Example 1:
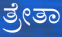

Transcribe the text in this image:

ತ್ರೇತಾ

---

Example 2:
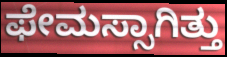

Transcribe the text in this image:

ಫೇಮಸ್ಸಾಗಿತ್ತು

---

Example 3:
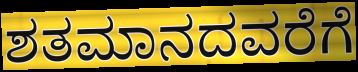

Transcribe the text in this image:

ಶತಮಾನದವರೆಗೆ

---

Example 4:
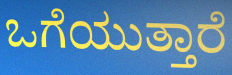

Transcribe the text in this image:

ಒಗೆಯುತ್ತಾರೆ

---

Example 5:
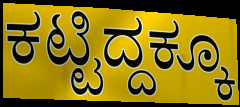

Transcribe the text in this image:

ಕಟ್ಟಿದ್ದಕ್ಕೂ